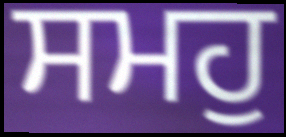
ਸਮਹੁ